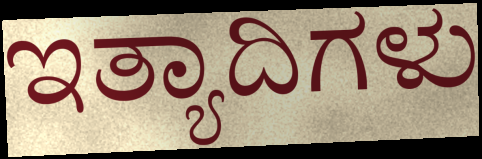
ಇತ್ಯಾದಿಗಳು